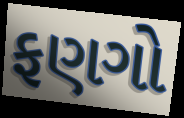
ફણગો